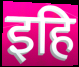
इहि